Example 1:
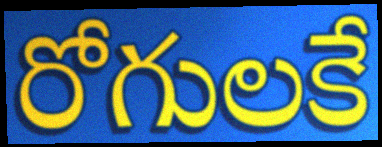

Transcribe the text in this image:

రోగులకే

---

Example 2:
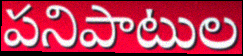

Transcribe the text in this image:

పనిపాటుల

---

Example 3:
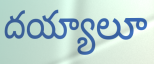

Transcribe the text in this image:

దయ్యాలూ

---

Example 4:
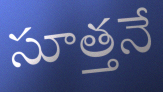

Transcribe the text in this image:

సూత్తనే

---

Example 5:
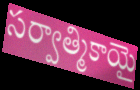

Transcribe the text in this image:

సర్వాత్మికాయై